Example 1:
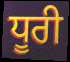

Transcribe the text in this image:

ਧੂਰੀ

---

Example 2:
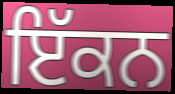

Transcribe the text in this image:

ਇੱਕਨ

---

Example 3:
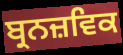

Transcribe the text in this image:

ਬ੍ਰਨਜ਼ਵਿਕ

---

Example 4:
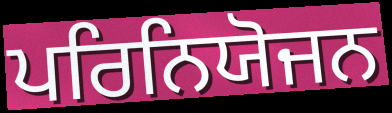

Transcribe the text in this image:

ਪਰਿਨਿਯੋਜਨ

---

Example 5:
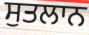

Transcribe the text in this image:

ਸੁਤਲਾਨ